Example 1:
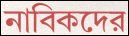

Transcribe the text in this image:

নাবিকদের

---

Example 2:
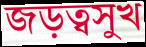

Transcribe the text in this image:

জড়ত্বসুখ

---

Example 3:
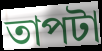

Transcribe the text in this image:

তাপটা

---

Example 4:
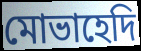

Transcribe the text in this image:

মোভাহেদি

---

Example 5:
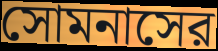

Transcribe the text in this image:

সোমনাসের